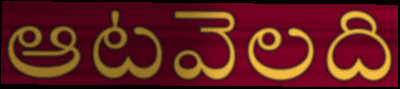
ఆటవెలది